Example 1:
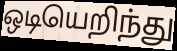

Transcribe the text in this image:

ஒடியெறிந்து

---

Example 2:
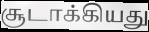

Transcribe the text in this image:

சூடாக்கியது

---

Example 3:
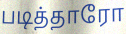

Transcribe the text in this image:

படித்தாரோ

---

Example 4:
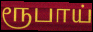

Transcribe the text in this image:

ரூபாய்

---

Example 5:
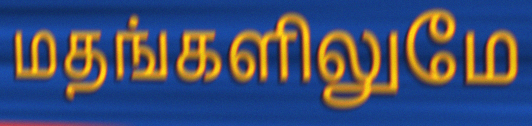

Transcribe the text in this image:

மதங்களிலுமே